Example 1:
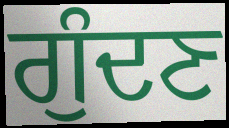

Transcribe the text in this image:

ਗੁੰਦਣ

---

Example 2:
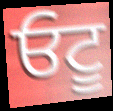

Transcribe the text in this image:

ਓਟੂ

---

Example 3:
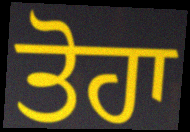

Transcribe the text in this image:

ਤੋਹਾ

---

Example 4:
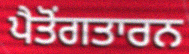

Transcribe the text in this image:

ਪੈਤੋਂਗਤਾਰਨ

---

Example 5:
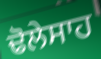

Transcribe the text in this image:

ਢੋਲੇਸਾਹ